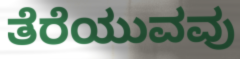
ತೆರೆಯುವವು